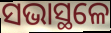
ସଭାସ୍ଥଳେ